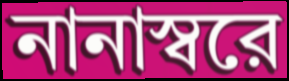
নানাস্বরে